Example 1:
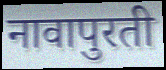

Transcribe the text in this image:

नावापुरती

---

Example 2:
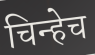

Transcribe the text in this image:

चिन्हेच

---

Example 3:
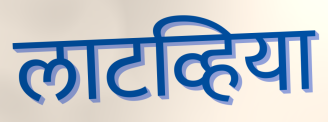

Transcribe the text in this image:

लाटव्हिया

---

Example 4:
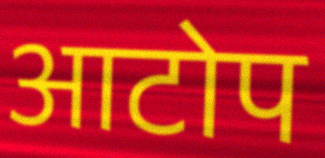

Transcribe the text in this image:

आटोप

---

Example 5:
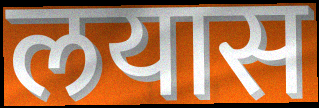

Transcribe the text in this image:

लयास